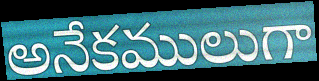
అనేకములుగా